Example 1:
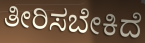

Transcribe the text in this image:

ತೀರಿಸಬೇಕಿದೆ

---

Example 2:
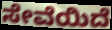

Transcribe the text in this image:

ಸೇವೆಯಿದೆ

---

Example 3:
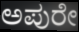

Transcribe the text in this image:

ಅಪುರೇ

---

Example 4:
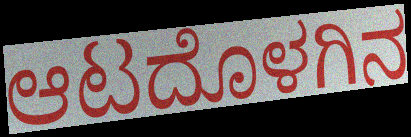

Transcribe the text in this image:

ಆಟದೊಳಗಿನ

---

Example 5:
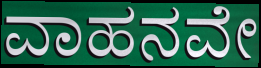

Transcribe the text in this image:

ವಾಹನವೇ